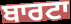
ਬਾਰਟਾ